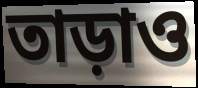
তাড়াও